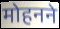
मोहनने